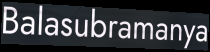
Balasubramanya